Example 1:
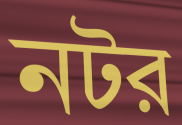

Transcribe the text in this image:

নটর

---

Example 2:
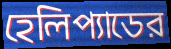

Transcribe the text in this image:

হেলিপ্যাডের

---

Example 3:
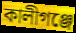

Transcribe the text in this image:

কালীগঞ্জে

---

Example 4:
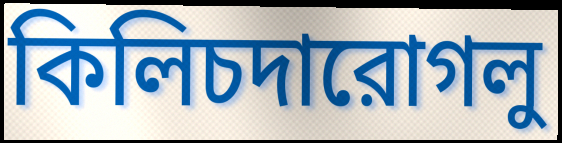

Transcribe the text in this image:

কিলিচদারোগলু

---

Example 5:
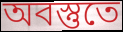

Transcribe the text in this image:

অবস্তুতে